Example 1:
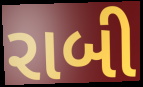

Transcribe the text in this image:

રાબી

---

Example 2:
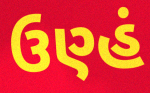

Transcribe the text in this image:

ઉણ્હં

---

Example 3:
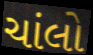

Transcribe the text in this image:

ચાંલો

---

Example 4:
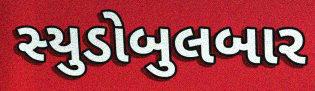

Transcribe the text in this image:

સ્યુડોબુલબાર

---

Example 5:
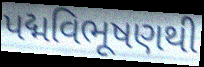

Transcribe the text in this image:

પદ્મવિભૂષણથી